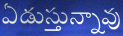
ఏడుస్తున్నావు